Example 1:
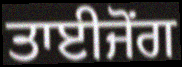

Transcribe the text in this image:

ਤਾਈਜੋਂਗ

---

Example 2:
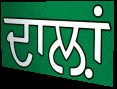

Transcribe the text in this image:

ਦਾਲ਼ਾਂ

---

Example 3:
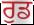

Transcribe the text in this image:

ਰੁਡ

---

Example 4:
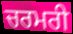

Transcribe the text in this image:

ਚਰਮਰੀ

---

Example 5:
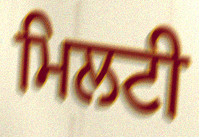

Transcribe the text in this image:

ਮਿਲਟੀ